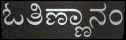
ಓತಿಣ್ಣಾನಂ